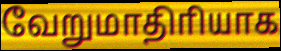
வேறுமாதிரியாக